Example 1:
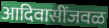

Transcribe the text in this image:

आदिवासींजवळ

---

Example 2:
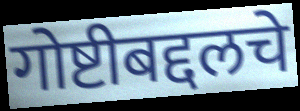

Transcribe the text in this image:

गोष्टीबद्दलचे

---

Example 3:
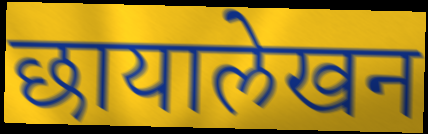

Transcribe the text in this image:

छायालेखन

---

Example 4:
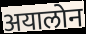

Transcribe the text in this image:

अयालोन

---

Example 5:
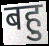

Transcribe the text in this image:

बहु